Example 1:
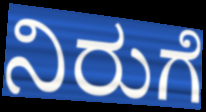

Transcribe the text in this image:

ನಿರುಗೆ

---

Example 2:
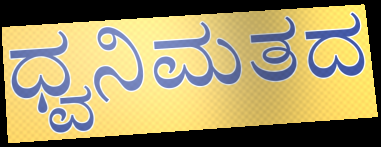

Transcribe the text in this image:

ಧ್ವನಿಮತದ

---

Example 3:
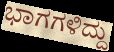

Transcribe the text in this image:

ಭಾಗಗಳಿದ್ದು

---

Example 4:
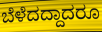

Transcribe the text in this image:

ಬೆಳೆದದ್ದಾದರೂ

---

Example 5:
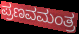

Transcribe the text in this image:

ಪ್ರಣವಮಂತ್ರ